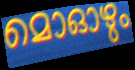
മൊഓഴും